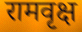
रामवृक्ष